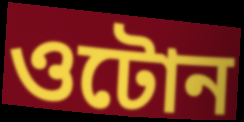
ওটোন